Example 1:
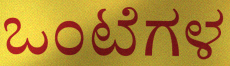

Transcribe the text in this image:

ಒಂಟೆಗಳ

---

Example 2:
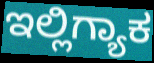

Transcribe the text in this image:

ಇಲ್ಲಿಗ್ಯಾಕ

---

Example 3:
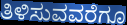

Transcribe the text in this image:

ತಿಳಿಸುವವರೆಗೂ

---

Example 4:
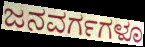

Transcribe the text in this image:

ಜನವರ್ಗಗಳೂ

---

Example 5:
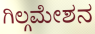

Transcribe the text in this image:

ಗಿಲ್ಗಮೇಶನ